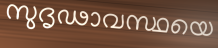
സുദൃഢാവസ്ഥയെ